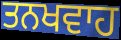
ਤਨਖਵਾਹ